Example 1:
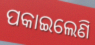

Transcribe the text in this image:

ପକାଇଲେଣି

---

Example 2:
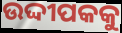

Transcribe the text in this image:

ଉଦ୍ଦୀପକକୁ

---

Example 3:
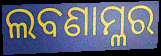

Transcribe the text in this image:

ଲବଣାମ୍ଳର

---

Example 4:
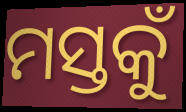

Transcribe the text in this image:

ମସ୍ତକୁଁ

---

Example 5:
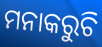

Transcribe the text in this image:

ମନାକରୁଚି